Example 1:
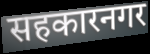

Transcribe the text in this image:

सहकारनगर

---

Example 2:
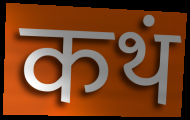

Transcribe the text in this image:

कथं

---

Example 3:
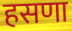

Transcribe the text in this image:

हसणा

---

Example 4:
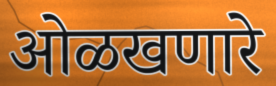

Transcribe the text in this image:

ओळखणारे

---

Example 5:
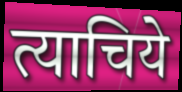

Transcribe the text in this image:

त्याचिये